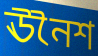
ঊনৈশ